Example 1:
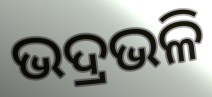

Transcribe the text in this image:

ଭଦ୍ରଭଳି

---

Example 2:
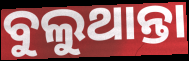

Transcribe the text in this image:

ବୁଲୁଥାନ୍ତା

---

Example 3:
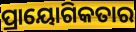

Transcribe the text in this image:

ପ୍ରାୟୋଗିକତାର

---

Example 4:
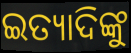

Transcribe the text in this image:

ଇତ୍ଯାଦିଙ୍କୁ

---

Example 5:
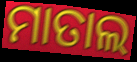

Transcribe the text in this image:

ମାତାଲ